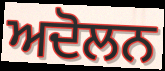
ਅਦੋਲਨ